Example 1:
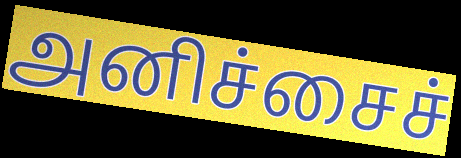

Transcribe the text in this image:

அனிச்சைச்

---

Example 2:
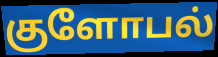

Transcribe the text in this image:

குளோபல்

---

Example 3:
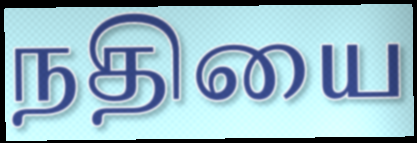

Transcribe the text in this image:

நதியை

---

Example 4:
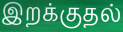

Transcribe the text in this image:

இறக்குதல்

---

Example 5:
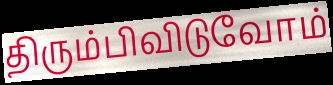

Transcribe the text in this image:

திரும்பிவிடுவோம்